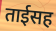
ताईसह